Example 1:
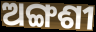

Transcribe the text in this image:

ଅଙ୍ଗଶୀ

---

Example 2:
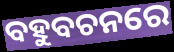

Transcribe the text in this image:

ବହୁବଚନରେ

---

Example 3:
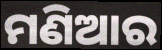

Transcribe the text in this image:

ମଣିଆର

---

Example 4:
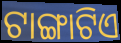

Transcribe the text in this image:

ଟାଙ୍ଗାଟିଏ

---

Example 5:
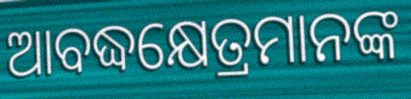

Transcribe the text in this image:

ଆବଦ୍ଧକ୍ଷେତ୍ରମାନଙ୍କ